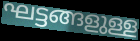
ഘട്ടങ്ങളുള്ള